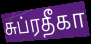
சுப்ரதீகா